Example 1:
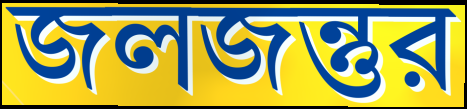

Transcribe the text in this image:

জলজন্তুর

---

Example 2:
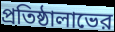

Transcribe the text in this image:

প্রতিষ্ঠালাভের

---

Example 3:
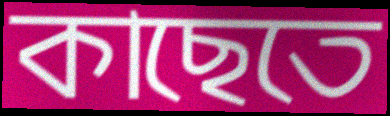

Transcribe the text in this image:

কাছেতে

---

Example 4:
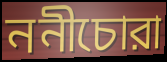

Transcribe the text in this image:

ননীচোরা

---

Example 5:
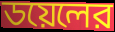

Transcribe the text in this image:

ডয়েলের